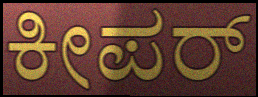
ಕೀಪರ್